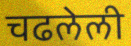
चढलेली